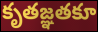
కృతజ్ఞతకూ